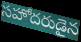
సహోదరుడైన